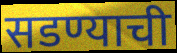
सडण्याची